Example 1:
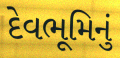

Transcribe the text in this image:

દેવભૂમિનું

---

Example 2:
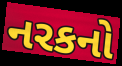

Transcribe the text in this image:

નરકનો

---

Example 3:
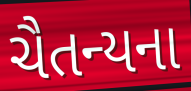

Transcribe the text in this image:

ચૈતન્યના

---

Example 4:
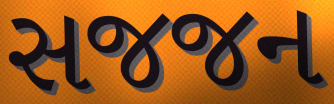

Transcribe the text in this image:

સજજન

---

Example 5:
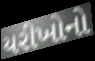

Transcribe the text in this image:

યરીખોનો